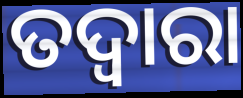
ତଦ୍ୱାରା